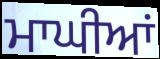
ਮਾਘੀਆਂ